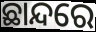
ଛାନ୍ଦରେ